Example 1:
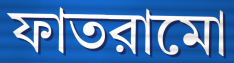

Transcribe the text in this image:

ফাতরামো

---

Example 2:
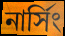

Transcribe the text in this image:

নার্সিং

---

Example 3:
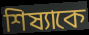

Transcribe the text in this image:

শিষ্যাকে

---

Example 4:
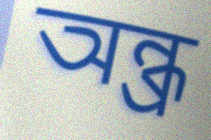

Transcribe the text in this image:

অন্ধ্র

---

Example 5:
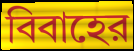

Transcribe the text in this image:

বিবাহের